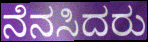
ನೆನಸಿದರು